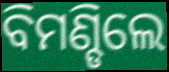
ବିମଣ୍ଡିଲେ